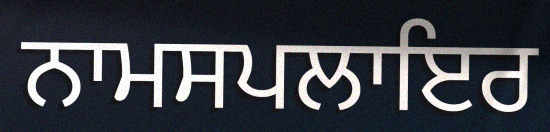
ਨਾਮਸਪਲਾਇਰ